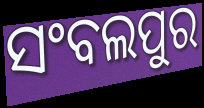
ସଂବଲପୁର